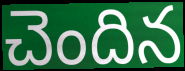
చెందిన